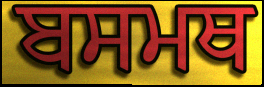
ਬਸਮਥ